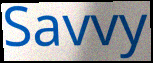
Savvy